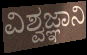
ವಿಶ್ವಜ್ಞಾನಿ